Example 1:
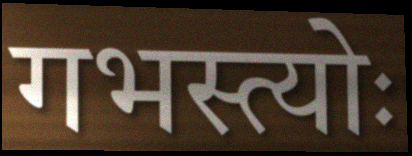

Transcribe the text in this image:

गभस्त्योः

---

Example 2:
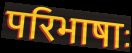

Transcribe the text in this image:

परिभाषाः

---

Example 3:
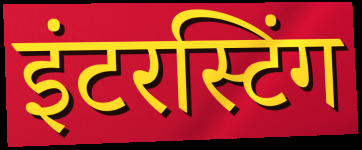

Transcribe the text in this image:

इंटरस्टिंग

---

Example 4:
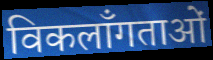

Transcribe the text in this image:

विकलाँगताओं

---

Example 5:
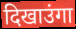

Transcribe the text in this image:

दिखाउंगा